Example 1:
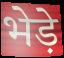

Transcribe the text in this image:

भेड़े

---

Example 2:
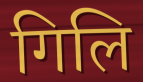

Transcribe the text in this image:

गिलि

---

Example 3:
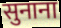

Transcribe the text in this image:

सुनाना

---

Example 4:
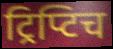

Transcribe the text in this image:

ट्रिप्टिच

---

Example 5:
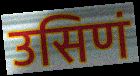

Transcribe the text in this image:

उसिणं